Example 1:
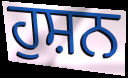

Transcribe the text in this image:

ਹੁਸ਼ਨ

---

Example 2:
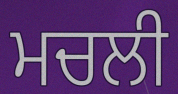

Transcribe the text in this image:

ਮਚਲੀ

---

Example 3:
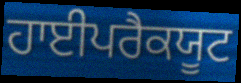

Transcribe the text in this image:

ਹਾਈਪਰੈਕਯੂਟ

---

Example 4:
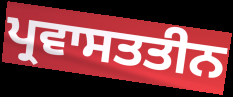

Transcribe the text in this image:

ਪ੍ਰਵਾਸਤਤੀਨ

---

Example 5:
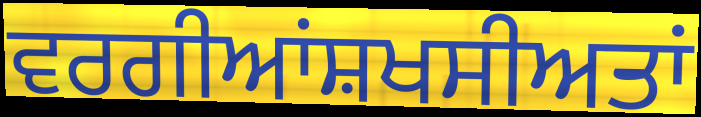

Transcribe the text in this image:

ਵਰਗੀਆਂਸ਼ਖਸੀਅਤਾਂ